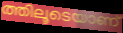
ത്തിലൂടെയാണ്